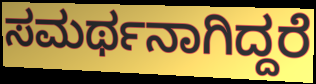
ಸಮರ್ಥನಾಗಿದ್ದರೆ